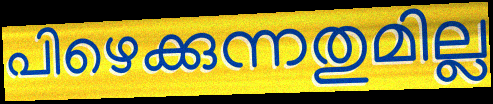
പിഴെക്കുന്നതുമില്ല